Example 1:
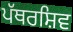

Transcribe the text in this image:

ਪੱਥਰਸ਼ਿਵ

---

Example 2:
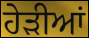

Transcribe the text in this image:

ਹੇੜੀਆਂ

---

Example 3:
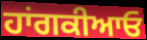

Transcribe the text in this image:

ਹਾਂਗਕੀਆਓ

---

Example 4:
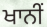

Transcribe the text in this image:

ਖਾਨੀਂ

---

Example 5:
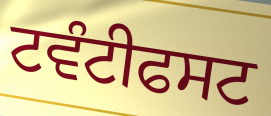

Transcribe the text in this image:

ਟਵੰਟੀਫਸਟ